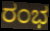
ರಂಭ